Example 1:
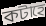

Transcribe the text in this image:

কটাহে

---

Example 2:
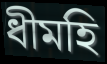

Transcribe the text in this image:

ধীমহি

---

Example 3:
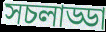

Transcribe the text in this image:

সচলাড্ডা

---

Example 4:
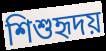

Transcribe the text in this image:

শিশুহৃদয়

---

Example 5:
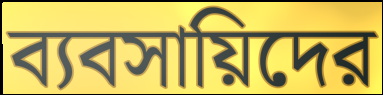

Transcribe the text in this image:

ব্যবসায়িদের